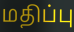
மதிப்பு